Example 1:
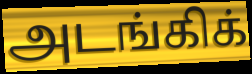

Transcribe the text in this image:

அடங்கிக்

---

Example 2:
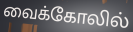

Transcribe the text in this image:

வைக்கோலில்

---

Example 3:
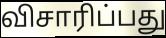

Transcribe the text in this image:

விசாரிப்பது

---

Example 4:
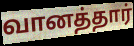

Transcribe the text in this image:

வானத்தார்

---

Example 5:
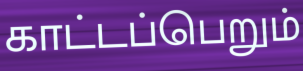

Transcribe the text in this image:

காட்டப்பெறும்